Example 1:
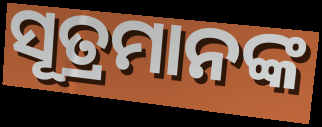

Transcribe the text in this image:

ସୂତ୍ରମାନଙ୍କ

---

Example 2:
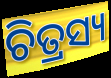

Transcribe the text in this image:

ଚିତ୍ରସ୍ୟ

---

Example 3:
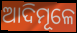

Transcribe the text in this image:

ଆଦିମୂଳେ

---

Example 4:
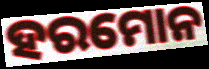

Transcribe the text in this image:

ହରମୋନ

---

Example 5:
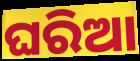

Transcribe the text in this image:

ଘରିଆ